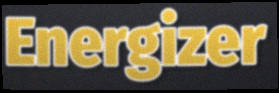
Energizer